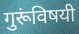
गुरूंविषयी